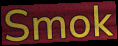
Smok